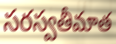
సరస్వతీమాత